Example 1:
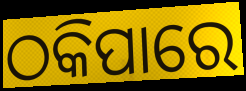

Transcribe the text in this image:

ଠକିପାରେ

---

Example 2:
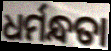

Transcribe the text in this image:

ଧର୍ମନ୍ଧତା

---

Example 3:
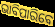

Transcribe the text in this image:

ଭାବିପାରିବେ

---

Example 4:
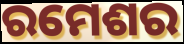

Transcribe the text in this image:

ରମେଶର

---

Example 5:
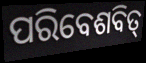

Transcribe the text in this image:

ପରିବେଶବିତ୍